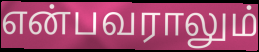
என்பவராலும்